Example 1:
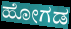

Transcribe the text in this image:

ಹೋಗಡ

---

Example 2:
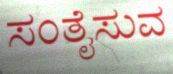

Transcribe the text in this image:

ಸಂತೈಸುವ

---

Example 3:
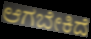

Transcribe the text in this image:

ಆಗಬೇಕಿದೆ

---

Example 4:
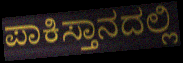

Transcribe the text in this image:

ಪಾಕಿಸ್ತಾನದಲ್ಲಿ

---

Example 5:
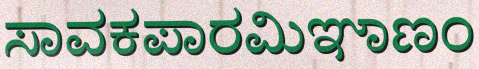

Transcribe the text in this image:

ಸಾವಕಪಾರಮಿಞಾಣಂ